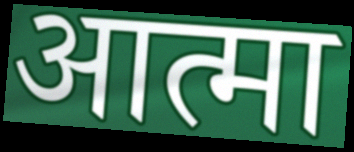
आत्मा